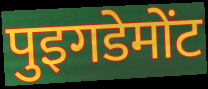
पुइगडेमोंट